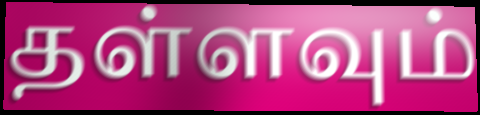
தள்ளவும்